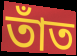
তাঁত